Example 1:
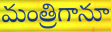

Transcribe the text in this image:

మంత్రిగానూ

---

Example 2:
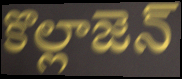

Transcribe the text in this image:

కొల్లాజెన్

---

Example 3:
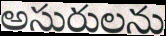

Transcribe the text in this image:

అసురులను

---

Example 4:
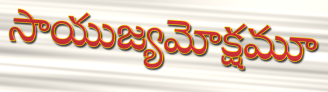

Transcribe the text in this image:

సాయుజ్యమోక్షమూ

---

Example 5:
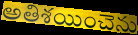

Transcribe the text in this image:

అతిశయించెను